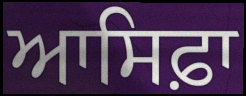
ਆਸਿਫ਼ਾ